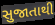
સુજાતાથી